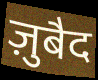
ज़ुबैद